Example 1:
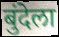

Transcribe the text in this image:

बुंदेला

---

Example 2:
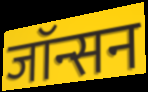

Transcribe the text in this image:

जॉन्सन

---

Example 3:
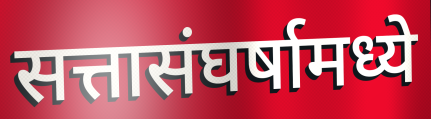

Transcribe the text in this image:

सत्तासंघर्षामध्ये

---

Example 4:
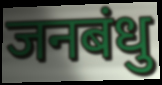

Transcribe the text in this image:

जनबंधु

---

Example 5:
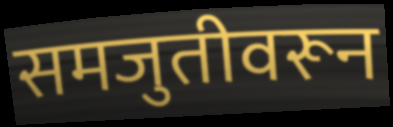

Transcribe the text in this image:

समजुतीवरून